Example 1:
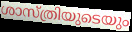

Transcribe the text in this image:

ശാസ്ത്രിയുടെയും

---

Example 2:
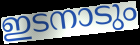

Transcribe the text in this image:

ഇടനാടും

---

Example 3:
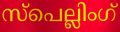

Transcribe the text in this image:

സ്പെല്ലിംഗ്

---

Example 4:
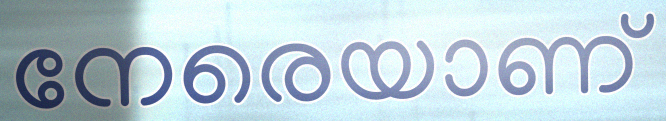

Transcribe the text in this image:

നേരെയാണ്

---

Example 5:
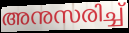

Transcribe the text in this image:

അനുസരിച്ച്